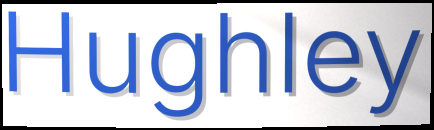
Hughley